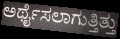
ಅರ್ಥೈಸಲಾಗುತ್ತಿತ್ತು